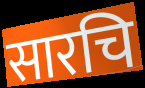
सारचि